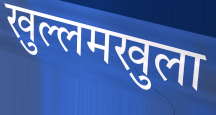
खुल्लमखुला